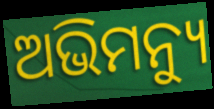
ଅଭିମନ୍ଯୁ